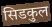
सिडकुल